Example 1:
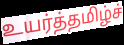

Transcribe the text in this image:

உயர்த்தமிழ்ச்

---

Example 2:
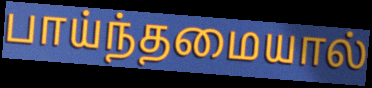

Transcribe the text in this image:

பாய்ந்தமையால்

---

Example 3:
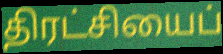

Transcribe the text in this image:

திரட்சியைப்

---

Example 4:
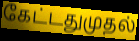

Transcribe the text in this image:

கேட்டதுமுதல்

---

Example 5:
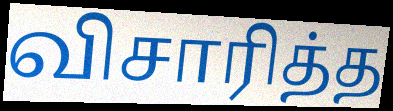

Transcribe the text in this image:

விசாரித்த